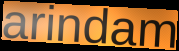
arindam